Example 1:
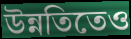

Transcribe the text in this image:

উন্নতিতেও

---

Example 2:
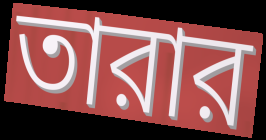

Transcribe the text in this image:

তারার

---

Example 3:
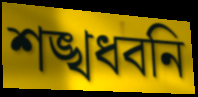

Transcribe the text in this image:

শঙ্খধবনি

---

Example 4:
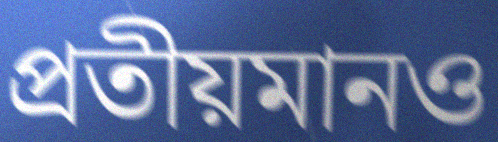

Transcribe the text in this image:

প্রতীয়মানও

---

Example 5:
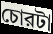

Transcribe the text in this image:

চোরটা